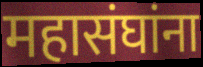
महासंघांना